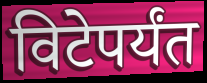
विटेपर्यंत